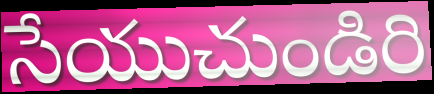
సేయుచుండిరి